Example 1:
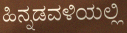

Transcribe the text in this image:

ಹಿನ್ನಡವಳಿಯಲ್ಲಿ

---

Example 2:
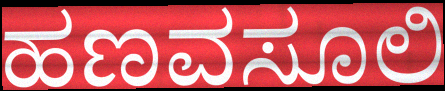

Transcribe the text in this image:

ಹಣವಸೂಲಿ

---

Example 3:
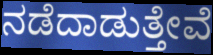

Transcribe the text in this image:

ನಡೆದಾಡುತ್ತೇವೆ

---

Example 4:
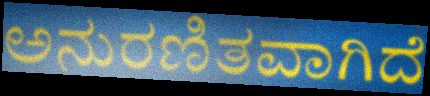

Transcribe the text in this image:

ಅನುರಣಿತವಾಗಿದೆ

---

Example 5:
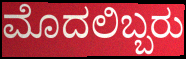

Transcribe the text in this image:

ಮೊದಲಿಬ್ಬರು